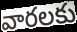
వారలకు